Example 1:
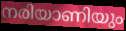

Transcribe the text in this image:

നരിയാണിയും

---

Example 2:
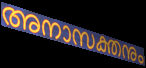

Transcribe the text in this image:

അനാസക്തനും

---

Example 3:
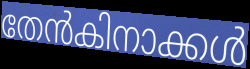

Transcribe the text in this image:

തേൻകിനാക്കൾ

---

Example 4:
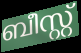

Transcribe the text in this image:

ബീസ്റ്റ്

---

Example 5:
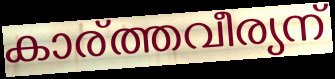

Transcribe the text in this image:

കാര്ത്തവീര്യന്